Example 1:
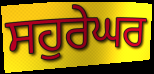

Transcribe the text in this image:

ਸਹੁਰੇਘਰ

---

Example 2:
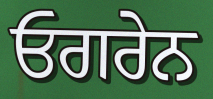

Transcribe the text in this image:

ਓਗਰੇਨ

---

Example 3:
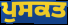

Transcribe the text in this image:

ਪੁਸਕਤ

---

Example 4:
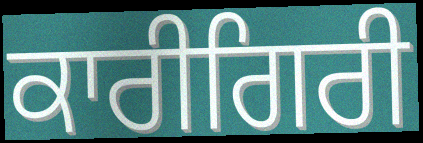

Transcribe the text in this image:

ਕਾਰੀਗਿਰੀ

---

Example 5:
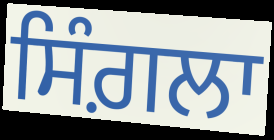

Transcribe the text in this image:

ਸਿੰਗ਼ਲਾ